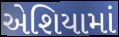
એશિયામાં